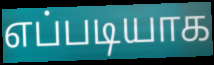
எப்படியாக